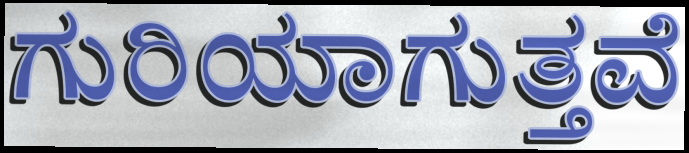
ಗುರಿಯಾಗುತ್ತವೆ